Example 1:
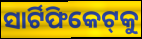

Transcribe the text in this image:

ସାର୍ଟିଫିକେଟ୍‌କୁ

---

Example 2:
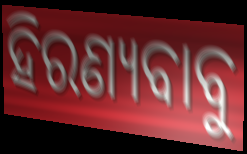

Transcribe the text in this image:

ହିରଣ୍ୟବାବୁ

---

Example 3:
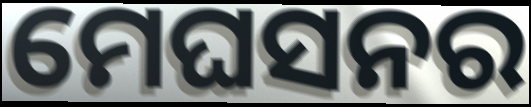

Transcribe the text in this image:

ମେଘସନର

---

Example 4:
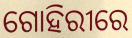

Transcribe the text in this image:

ଗୋହିରୀରେ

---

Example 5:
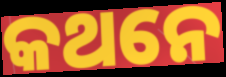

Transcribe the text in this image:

କଥନେ